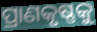
ପ୍ରାଣକୃଷ୍ଣକୁ